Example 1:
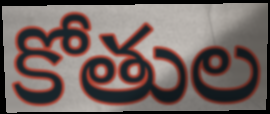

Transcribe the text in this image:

కోతుల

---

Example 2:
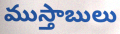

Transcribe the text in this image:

ముస్తాబులు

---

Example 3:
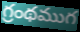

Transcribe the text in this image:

గ్రంథముగ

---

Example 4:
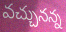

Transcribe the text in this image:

వచ్చునన్న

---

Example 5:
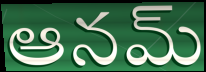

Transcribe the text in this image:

ఆనమ్